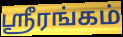
ஸ்ரீரங்கம்